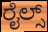
ರೈಲ್ಸ್